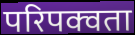
परिपक्‍वता